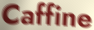
Caffine